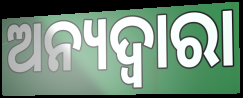
ଅନ୍ୟଦ୍ଵାରା